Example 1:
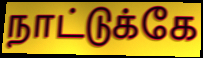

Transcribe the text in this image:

நாட்டுக்கே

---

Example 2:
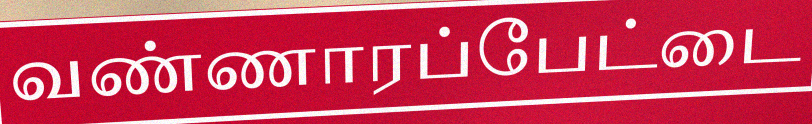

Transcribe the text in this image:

வண்ணாரப்பேட்டை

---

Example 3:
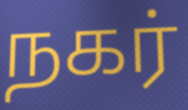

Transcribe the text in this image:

நகர்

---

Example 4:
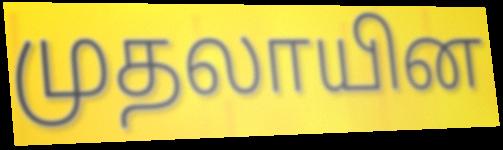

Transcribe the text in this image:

முதலாயின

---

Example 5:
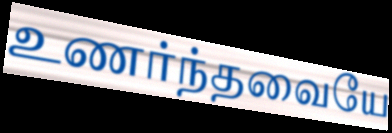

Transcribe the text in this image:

உணர்ந்தவையே